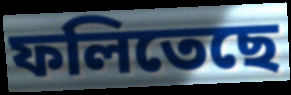
ফলিতেছে